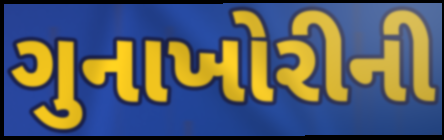
ગુનાખોરીની